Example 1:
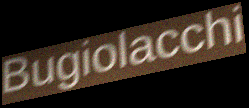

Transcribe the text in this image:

Bugiolacchi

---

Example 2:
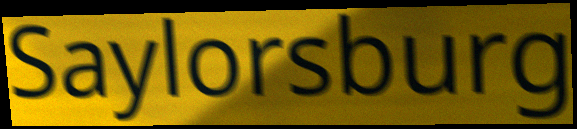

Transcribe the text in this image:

Saylorsburg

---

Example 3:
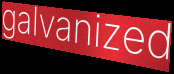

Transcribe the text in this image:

galvanized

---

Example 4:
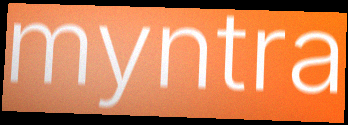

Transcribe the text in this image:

myntra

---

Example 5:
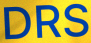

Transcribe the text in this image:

DRS